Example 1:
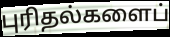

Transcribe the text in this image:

புரிதல்களைப்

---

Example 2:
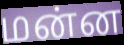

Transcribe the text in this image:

மன்ன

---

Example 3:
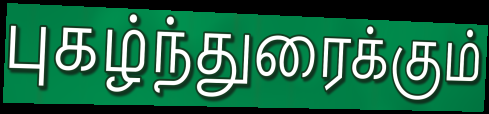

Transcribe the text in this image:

புகழ்ந்துரைக்கும்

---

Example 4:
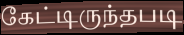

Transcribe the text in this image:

கேட்டிருந்தபடி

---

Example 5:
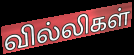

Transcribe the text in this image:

வில்லிகள்